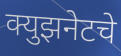
क्युझनेटचे